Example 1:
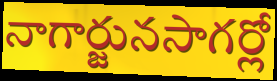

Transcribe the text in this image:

నాగార్జునసాగర్లో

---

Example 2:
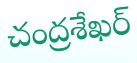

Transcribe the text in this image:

చంద్రశేఖర్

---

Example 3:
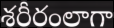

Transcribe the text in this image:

శరీరంలాగా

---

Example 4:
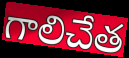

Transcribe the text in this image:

గాలిచేత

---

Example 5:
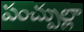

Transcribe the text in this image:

పంచ్పుల్లా